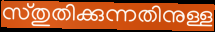
സ്തുതിക്കുന്നതിനുള്ള